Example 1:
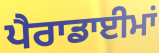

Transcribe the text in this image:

ਪੈਰਾਡਾਈਮਾਂ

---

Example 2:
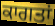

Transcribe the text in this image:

ਕਾਗਤਾਂ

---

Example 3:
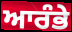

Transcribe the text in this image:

ਆਰੰਭੇ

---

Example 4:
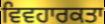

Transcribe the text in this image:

ਵਿਵਹਾਰਕਤਾ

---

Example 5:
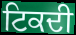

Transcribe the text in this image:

ਟਿਕਦੀ